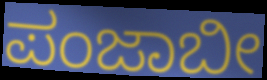
ಪಂಜಾಬೀ